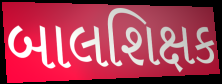
બાલશિક્ષક